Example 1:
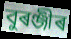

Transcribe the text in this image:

বুৰঞ্জীৰ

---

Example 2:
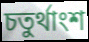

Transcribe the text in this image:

চতুৰ্থাংশ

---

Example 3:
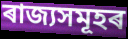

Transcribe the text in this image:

ৰাজ্যসমূহৰ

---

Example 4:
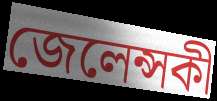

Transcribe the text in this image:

জেলেন্সকী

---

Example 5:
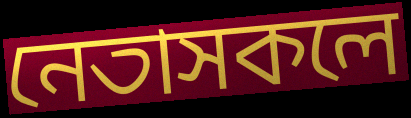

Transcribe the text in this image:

নেতাসকলে